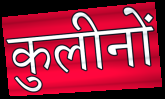
कुलीनों